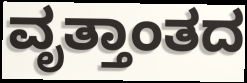
ವೃತ್ತಾಂತದ